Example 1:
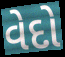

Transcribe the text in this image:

વેદો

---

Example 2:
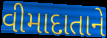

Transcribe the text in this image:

વીમાદાતાને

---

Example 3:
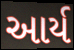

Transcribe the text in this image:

આર્ય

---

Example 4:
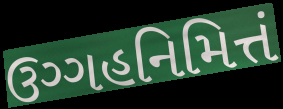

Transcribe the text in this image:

ઉગ્ગહનિમિત્તં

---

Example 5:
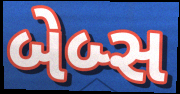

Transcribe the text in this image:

બેબ્સ